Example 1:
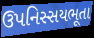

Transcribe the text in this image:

ઉપનિસ્સયભૂતા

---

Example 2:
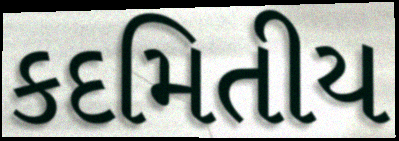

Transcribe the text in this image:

કદમિતીય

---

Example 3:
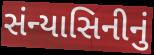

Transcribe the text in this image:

સંન્યાસિનીનું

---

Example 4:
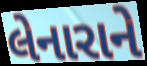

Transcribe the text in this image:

લેનારાને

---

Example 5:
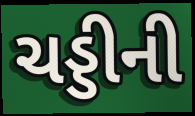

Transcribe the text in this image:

ચડ્ડીની